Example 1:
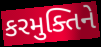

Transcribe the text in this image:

કરમુક્તિને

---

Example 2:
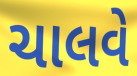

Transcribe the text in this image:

ચાલવે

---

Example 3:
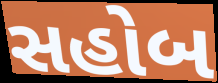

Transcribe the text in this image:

સહોબ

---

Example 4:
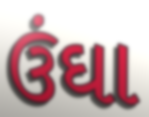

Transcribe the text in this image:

ઉંઘા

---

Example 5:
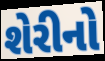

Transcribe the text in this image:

શેરીનો